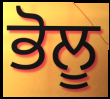
ਭੋਲੂ